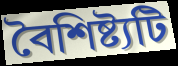
বৈশিষ্ট্যটি